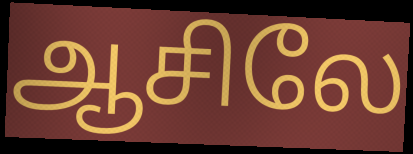
ஆசிலே